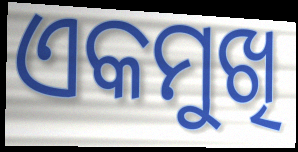
ଏକମୁଖି